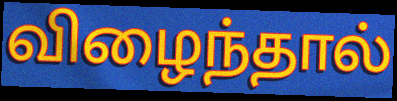
விழைந்தால்